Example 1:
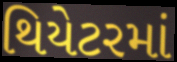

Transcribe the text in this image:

થિયેટરમાં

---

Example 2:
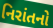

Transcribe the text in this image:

નિરાંતનો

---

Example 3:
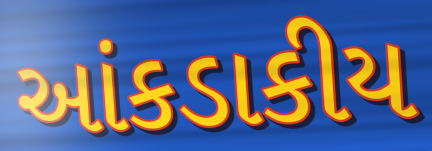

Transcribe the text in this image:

આંકડાકીય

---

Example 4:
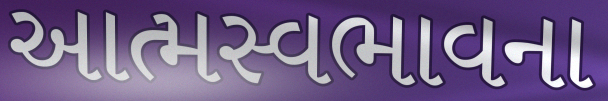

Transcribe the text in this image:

આત્મસ્વભાવના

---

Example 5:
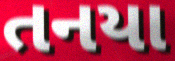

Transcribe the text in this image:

તનયા